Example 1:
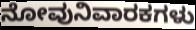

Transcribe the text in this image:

ನೋವುನಿವಾರಕಗಳು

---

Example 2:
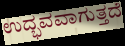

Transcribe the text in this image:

ಉದ್ಭವವಾಗುತ್ತದೆ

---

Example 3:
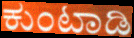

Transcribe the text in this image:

ಕುಂಟಾಡಿ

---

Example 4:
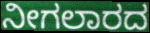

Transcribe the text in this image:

ನೀಗಲಾರದ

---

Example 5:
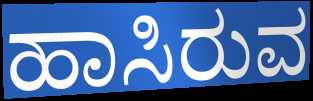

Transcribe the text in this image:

ಹಾಸಿರುವ